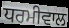
ਧਰਮੀਵਾਲ